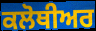
ਕਲੋਥੀਅਰ